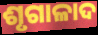
ଶୃଗାଳାଦ